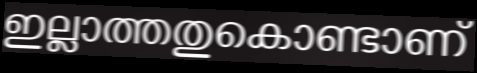
ഇല്ലാത്തതുകൊണ്ടാണ്